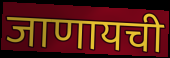
जाणायची